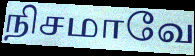
நிசமாவே